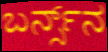
ಬರ್ನ್ಸ್‌ನ